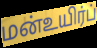
மன்உயிர்ப்